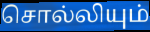
சொல்லியும்